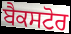
ਬੈਕਸਟੋਰ